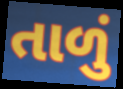
તાળું